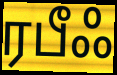
ரபீஃ